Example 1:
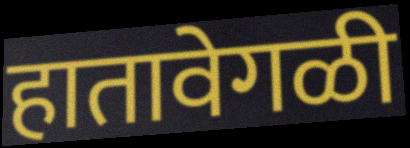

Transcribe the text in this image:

हातावेगळी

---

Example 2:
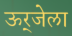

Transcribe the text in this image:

ऊर्जेला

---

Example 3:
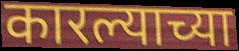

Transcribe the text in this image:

कारल्याच्या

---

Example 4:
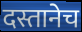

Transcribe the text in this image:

दस्तानेच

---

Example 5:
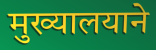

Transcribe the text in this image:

मुख्यालयाने